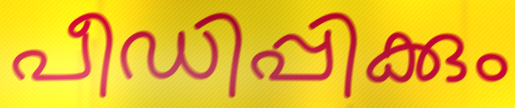
പീഡിപ്പിക്കും